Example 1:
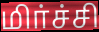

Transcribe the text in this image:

மிர்ச்சி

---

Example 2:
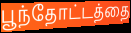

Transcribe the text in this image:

பூந்தோட்டத்தை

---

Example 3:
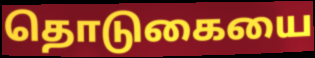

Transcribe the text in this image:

தொடுகையை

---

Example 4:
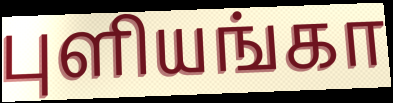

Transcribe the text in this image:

புளியங்கா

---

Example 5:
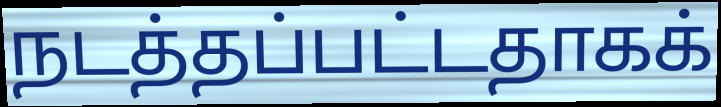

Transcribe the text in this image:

நடத்தப்பட்டதாகக்